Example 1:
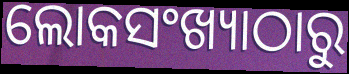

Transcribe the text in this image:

ଲୋକସଂଖ୍ୟାଠାରୁ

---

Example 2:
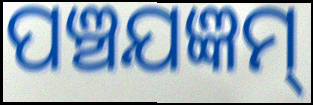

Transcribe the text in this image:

ପଞ୍ଚଯଜ୍ଞମ୍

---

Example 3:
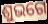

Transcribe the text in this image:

ଶୁଭଗେ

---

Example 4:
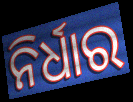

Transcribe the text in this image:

ନିର୍ଧାର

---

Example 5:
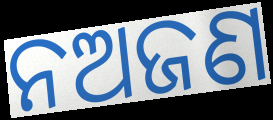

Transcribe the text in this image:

ନଅଜଣ